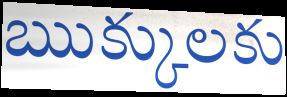
ఋక్కులకు